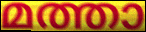
മത്താ